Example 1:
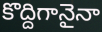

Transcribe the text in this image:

కొద్దిగానైనా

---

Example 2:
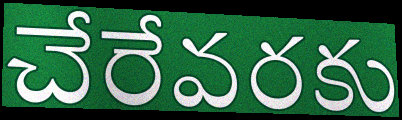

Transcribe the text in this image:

చేరేవరకు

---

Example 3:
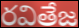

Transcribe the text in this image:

రవితేజ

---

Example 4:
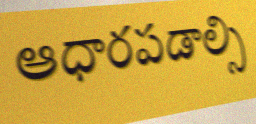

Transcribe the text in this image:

ఆధారపడాల్సి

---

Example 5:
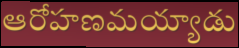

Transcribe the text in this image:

ఆరోహణమయ్యాడు